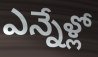
ఎన్నేళ్లో